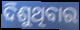
ଦିଶୁଥିବାର